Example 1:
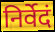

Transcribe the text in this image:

निर्वेदं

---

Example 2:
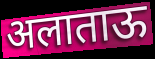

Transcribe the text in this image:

अलाताऊ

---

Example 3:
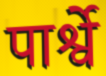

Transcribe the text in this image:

पार्श्वे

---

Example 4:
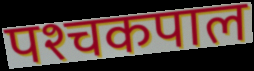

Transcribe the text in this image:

पश्चकपाल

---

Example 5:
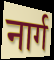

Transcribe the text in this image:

नार्ग